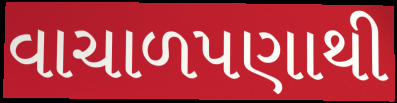
વાચાળપણાથી